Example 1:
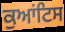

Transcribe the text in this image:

ਕੁਆਂਟਿਸ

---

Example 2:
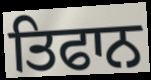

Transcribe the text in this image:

ਤਿਫਾਨ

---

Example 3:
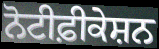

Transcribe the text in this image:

ਨੋਟੀਫ਼ੀਕੇਸ਼ਨ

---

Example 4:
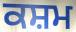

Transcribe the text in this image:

ਕਸ਼ਮ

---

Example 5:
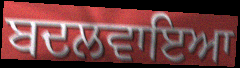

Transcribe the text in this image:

ਬਦਲਵਾਇਆ